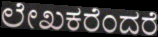
ಲೇಖಕರೆಂದರೆ